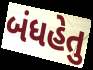
બંધહેતુ